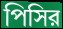
পিসির